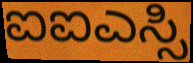
ಐಐಎಸ್ಸಿ